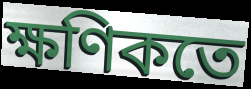
ক্ষণিকতে